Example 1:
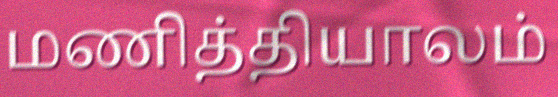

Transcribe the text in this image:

மணித்தியாலம்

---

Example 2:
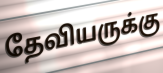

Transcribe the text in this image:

தேவியருக்கு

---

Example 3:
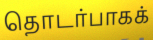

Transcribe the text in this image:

தொடர்பாகக்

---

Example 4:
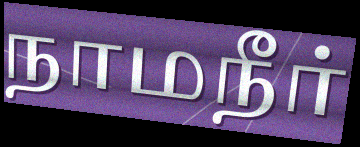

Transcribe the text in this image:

நாமநீர்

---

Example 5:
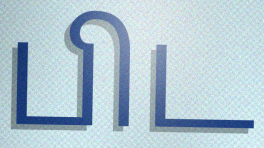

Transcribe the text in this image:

பிட